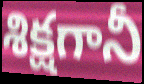
శిక్షగానీ